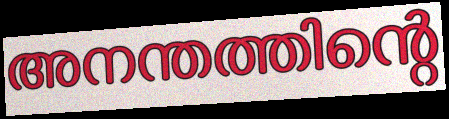
അനന്തത്തിന്റെ